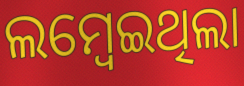
ଲମ୍ବେଇଥିଲା